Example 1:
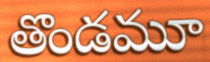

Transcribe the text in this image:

తొండమూ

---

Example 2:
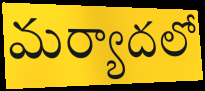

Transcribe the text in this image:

మర్యాదలో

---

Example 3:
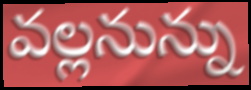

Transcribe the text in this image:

వల్లనున్ను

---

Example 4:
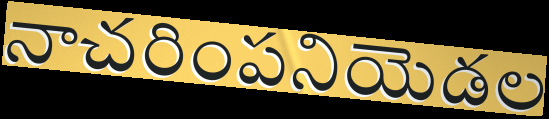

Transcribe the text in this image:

నాచరింపనియెడల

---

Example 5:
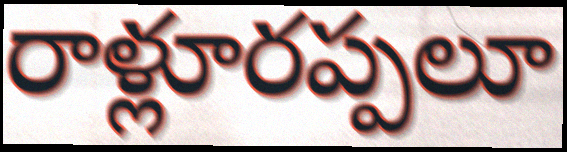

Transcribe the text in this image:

రాళ్లూరప్పలూ